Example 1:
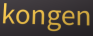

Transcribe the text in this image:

kongen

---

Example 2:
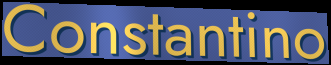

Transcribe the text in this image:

Constantino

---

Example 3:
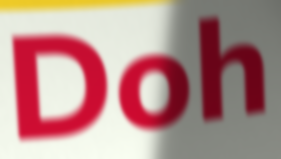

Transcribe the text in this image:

Doh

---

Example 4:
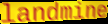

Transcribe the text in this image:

landmine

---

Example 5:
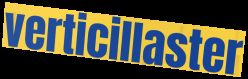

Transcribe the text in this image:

verticillaster